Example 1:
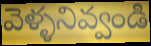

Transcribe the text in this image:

వెళ్ళనివ్వండి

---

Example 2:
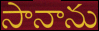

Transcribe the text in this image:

సానాను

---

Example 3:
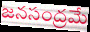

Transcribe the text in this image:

జనసంద్రమే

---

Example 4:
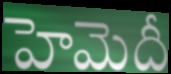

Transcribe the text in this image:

హెమెదీ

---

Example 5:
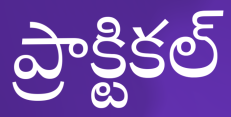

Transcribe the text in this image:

ప్రాక్టికల్